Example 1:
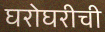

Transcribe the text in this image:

घरोघरीची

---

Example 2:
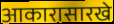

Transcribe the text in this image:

आकारासारखे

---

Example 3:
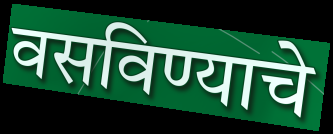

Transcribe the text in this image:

वसविण्याचे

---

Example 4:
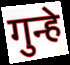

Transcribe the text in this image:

गुन्हे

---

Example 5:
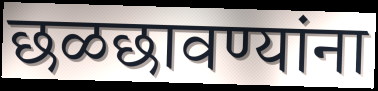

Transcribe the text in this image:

छळछावण्यांना